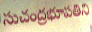
సుచంద్రభూపతిని